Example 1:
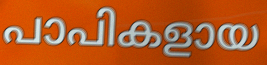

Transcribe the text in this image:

പാപികളായ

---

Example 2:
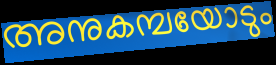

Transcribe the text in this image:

അനുകമ്പയോടും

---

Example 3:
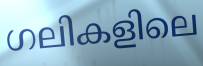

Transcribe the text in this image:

ഗലികളിലെ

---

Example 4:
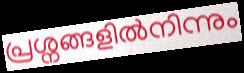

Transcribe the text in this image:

പ്രശ്നങ്ങളിൽനിന്നും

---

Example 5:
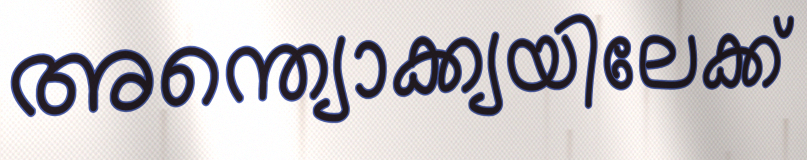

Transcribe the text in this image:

അന്ത്യൊക്ക്യയിലേക്ക്